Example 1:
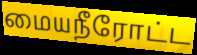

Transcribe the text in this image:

மையநீரோட்ட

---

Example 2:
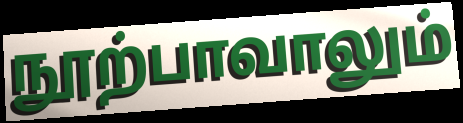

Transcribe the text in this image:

நூற்பாவாலும்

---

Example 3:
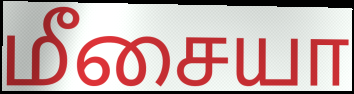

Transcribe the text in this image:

மீசையா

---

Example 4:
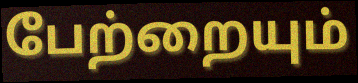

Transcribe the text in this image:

பேற்றையும்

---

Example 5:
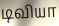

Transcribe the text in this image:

டிவியா